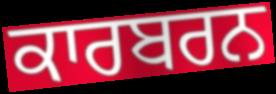
ਕਾਰਬਰਨ